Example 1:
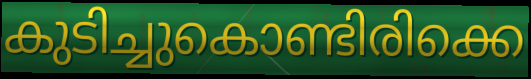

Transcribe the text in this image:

കുടിച്ചുകൊണ്ടിരിക്കെ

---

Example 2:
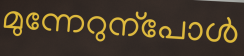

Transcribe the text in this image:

മുന്നേറുന്പോൾ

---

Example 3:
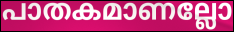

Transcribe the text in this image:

പാതകമാണല്ലോ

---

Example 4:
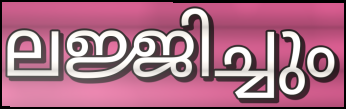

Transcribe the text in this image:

ലജ്ജിച്ചും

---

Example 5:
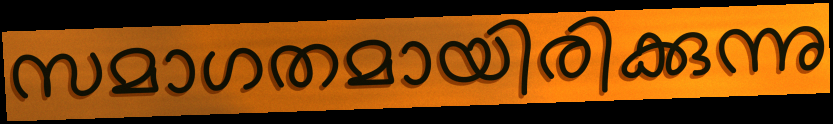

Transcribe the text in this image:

സമാഗതമായിരിക്കുന്നു